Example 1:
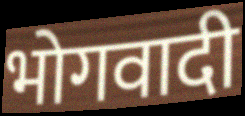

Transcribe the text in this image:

भोगवादी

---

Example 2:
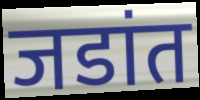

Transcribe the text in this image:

जडांत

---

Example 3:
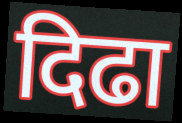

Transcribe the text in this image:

दिढा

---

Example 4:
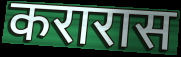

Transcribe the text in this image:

करारास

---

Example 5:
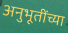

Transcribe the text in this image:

अनुभूतींच्या